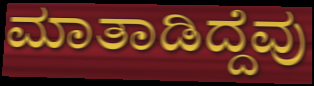
ಮಾತಾಡಿದ್ದೆವು